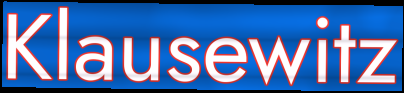
Klausewitz